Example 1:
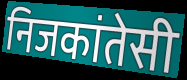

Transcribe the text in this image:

निजकांतेसी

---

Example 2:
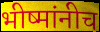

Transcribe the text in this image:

भीष्मांनीच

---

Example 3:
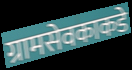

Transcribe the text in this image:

ग्रामसेवकाकडे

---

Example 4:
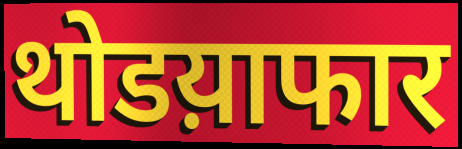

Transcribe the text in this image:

थोडय़ाफार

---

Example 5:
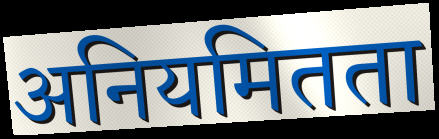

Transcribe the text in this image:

अनियमितता